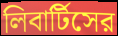
লিবার্টিসের